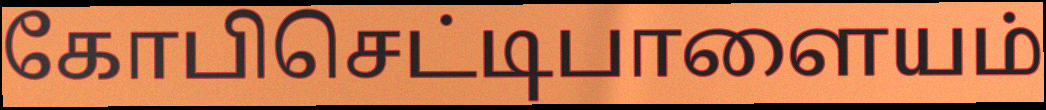
கோபிசெட்டிபாளையம்